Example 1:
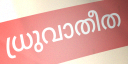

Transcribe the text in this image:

ധ്രുവാതീത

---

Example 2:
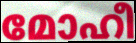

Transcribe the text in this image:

മോഹീ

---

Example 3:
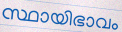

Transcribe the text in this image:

സ്ഥായിഭാവം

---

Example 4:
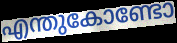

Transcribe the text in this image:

എന്തുകോണ്ടോ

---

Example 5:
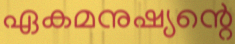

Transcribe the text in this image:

ഏകമനുഷ്യന്റെ